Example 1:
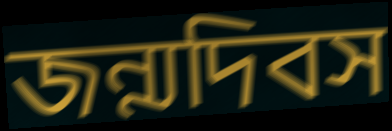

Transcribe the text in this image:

জন্মদিবস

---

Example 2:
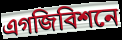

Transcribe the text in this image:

এগজিবিশনে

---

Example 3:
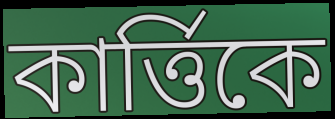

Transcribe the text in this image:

কার্ত্তিকে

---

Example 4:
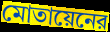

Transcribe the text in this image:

মোতায়েনের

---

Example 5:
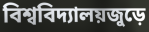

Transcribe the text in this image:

বিশ্ববিদ্যালয়জুড়ে